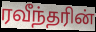
ரவீந்தரின்